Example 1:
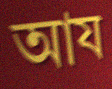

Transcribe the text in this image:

আয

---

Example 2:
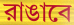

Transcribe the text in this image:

রাঙাবে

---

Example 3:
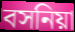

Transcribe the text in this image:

বসনিয়া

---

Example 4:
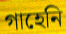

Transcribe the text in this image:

গাহেনি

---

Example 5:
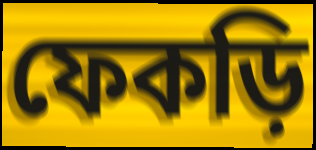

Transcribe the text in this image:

ফেকড়ি